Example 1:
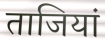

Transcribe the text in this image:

ताजियां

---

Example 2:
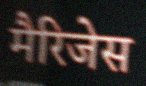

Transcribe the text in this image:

मैरिजेस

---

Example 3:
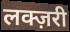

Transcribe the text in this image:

लक्ज़री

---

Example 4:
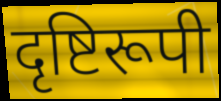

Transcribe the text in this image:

दृष्टिरूपी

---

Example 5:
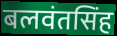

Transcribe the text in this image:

बलवंतसिंह